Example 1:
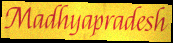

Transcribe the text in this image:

Madhyapradesh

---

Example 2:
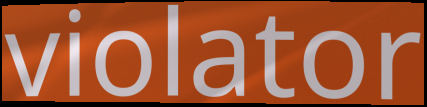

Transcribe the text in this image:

violator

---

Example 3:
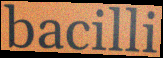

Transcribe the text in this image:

bacilli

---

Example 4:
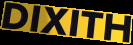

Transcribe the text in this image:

DIXITH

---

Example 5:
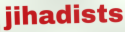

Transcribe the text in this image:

jihadists